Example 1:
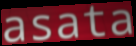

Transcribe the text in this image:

asata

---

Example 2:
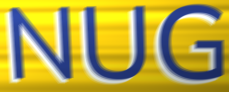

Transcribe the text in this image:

NUG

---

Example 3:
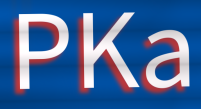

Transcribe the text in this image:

PKa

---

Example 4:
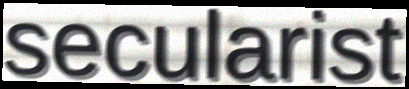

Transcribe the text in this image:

secularist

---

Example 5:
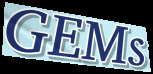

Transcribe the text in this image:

GEMs